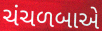
ચંચળબાએ